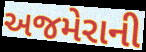
અજમેરાની